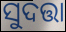
ସୁଦତ୍ତା